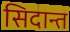
सिदान्त